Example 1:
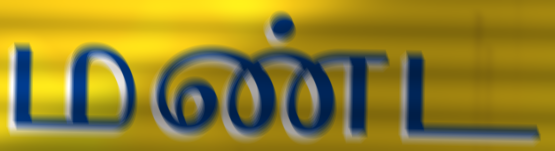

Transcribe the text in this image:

மண்ட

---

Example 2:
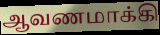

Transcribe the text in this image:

ஆவணமாக்கி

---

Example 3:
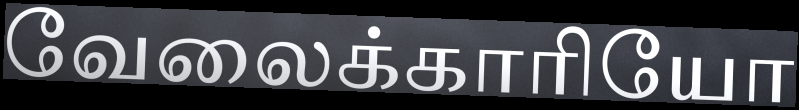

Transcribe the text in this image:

வேலைக்காரியோ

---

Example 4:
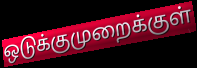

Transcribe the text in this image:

ஒடுக்குமுறைக்குள்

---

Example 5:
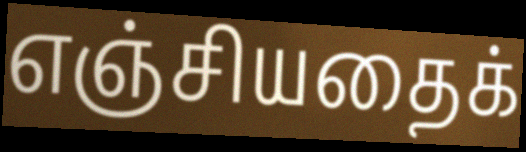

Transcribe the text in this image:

எஞ்சியதைக்